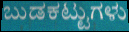
ಬುಡಕಟ್ಟುಗಳು